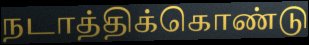
நடாத்திக்கொண்டு